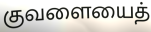
குவளையைத்